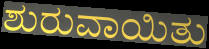
ಶುರುವಾಯಿತು